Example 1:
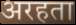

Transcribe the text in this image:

अरहता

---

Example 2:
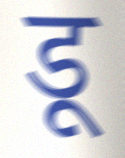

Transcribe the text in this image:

डू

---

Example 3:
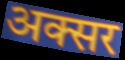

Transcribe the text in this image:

अक्‍सर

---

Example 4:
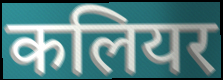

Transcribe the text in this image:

कलियर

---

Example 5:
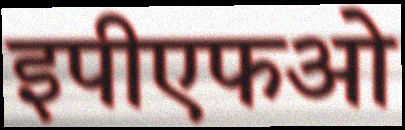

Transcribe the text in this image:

इपीएफओ